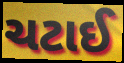
ચટાઈ